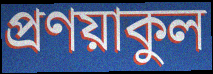
প্রণয়াকুল